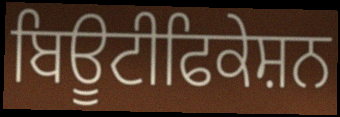
ਬਿਊਟੀਫਿਕੇਸ਼ਨ